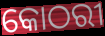
କୋଠରୀ